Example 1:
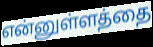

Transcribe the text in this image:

என்னுள்ளத்தை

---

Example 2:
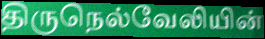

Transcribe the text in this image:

திருநெல்வேலியின்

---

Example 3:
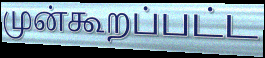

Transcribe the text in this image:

முன்கூறப்பட்ட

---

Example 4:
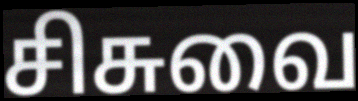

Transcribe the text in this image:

சிசுவை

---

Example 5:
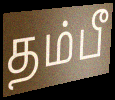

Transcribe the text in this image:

தம்பீ